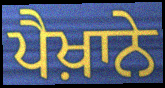
ਪੈਖ਼ਾਨੇ